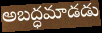
అబద్ధమాడడు